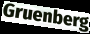
Gruenberg